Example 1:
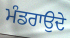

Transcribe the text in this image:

ਮੰਡਰਾਉਦੇ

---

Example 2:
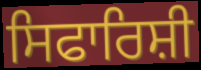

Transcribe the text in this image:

ਸਿਫਾਰਿਸ਼ੀ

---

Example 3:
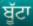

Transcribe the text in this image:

ਬੂੱਟਾ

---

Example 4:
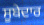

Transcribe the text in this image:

ਸੂਬੇਦਾਰ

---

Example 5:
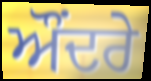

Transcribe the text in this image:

ਔਂਦਰੇ